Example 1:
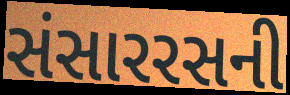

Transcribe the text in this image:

સંસારરસની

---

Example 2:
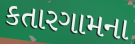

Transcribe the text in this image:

કતારગામના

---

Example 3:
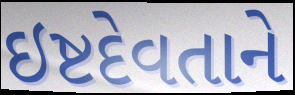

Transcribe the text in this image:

ઇષ્ટદેવતાને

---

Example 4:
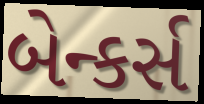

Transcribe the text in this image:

બેન્કર્સ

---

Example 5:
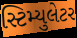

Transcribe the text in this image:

સ્ટિમ્યુલેટર